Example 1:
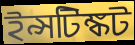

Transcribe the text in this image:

ইন্সটিঙ্কট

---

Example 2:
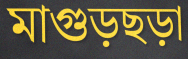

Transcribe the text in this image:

মাগুড়ছড়া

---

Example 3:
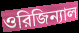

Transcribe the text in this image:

ওরিজিন্যাল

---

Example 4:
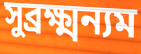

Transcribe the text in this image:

সুব্রক্ষ্মন্যম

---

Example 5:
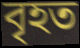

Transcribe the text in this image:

বৃহত